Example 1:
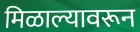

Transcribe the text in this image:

मिळाल्यावरून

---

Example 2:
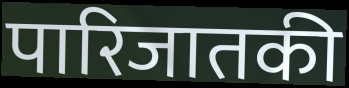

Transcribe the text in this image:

पारिजातकी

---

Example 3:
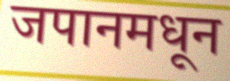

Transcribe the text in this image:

जपानमधून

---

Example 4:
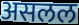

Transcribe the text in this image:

असलल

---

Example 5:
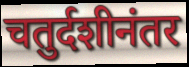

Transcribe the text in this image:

चतुर्दशीनंतर